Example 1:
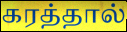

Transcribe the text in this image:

கரத்தால்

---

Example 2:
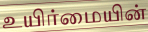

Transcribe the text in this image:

உயிர்மையின்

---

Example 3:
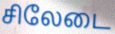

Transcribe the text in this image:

சிலேடை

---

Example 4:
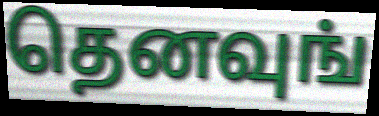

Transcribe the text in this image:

தெனவுங்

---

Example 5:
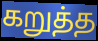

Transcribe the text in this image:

கறுத்த